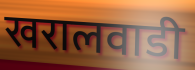
खरालवाडी